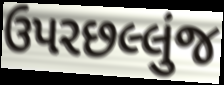
ઉપરછલ્લુંજ